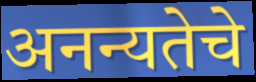
अनन्यतेचे